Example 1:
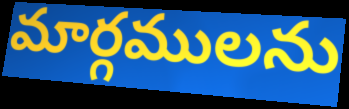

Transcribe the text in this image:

మార్గములను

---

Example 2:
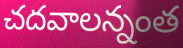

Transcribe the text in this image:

చదవాలన్నంత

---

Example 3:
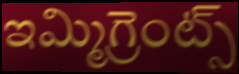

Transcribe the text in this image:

ఇమ్మిగ్రెంట్స్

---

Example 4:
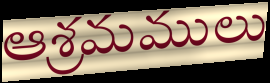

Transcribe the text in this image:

ఆశ్రమములు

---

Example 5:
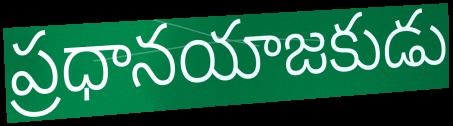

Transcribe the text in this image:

ప్రధానయాజకుడు